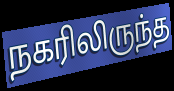
நகரிலிருந்த